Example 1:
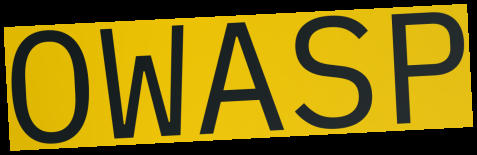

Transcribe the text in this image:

OWASP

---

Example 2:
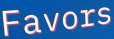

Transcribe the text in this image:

Favors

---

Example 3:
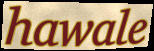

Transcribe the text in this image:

hawale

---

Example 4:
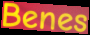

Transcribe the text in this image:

Benes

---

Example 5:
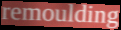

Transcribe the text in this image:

remoulding